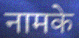
नामके